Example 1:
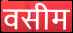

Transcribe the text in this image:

वसीम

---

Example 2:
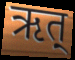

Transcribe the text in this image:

ऋत्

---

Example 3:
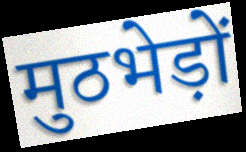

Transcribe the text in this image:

मुठभेड़ों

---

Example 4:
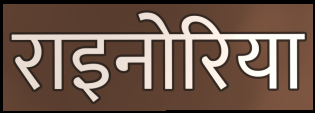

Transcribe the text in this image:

राइनोरिया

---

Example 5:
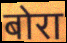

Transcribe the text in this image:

बोरा